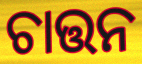
ଚାତ୍ତନ